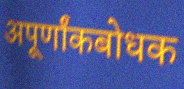
अपूर्णांकबोधक